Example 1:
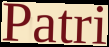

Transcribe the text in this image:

Patri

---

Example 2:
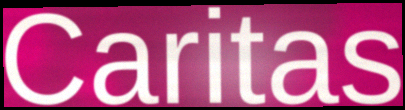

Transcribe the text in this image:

Caritas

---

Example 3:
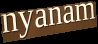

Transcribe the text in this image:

nyanam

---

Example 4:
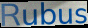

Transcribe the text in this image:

Rubus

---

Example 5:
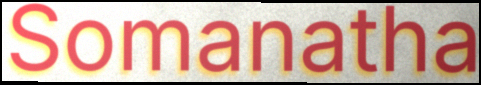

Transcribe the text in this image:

Somanatha